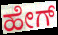
ಹೇಗ್